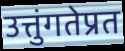
उत्तुंगतेप्रत